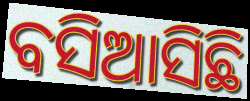
ବସିଆସିଛି